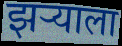
झर्‍याला